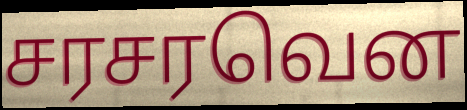
சரசரவென